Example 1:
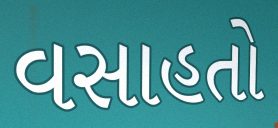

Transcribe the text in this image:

વસાહતો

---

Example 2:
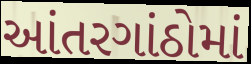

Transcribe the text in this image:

આંતરગાંઠોમાં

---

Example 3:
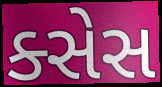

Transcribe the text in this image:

ક્સેસ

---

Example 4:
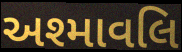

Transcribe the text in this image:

અશ્માવલિ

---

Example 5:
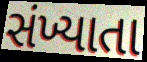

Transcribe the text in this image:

સંખ્યાતા